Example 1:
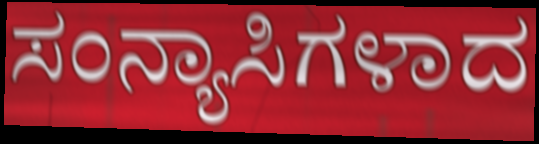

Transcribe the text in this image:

ಸಂನ್ಯಾಸಿಗಳಾದ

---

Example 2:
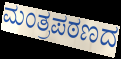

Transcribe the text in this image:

ಮಂತ್ರಪಠಣದ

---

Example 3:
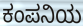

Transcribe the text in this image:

ಕಂಪನಿಯ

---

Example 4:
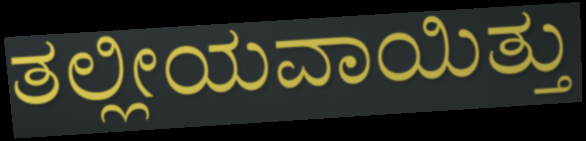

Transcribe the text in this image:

ತಲ್ಲೀಯವಾಯಿತ್ತು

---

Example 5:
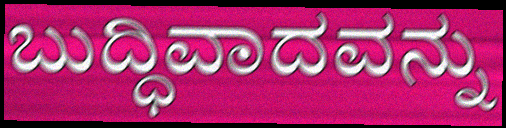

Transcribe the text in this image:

ಬುದ್ಧಿವಾದವನ್ನು